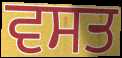
ਵਸਤ